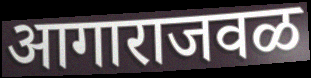
आगाराजवळ